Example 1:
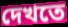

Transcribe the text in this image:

দেখতে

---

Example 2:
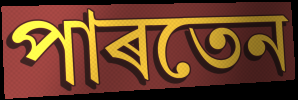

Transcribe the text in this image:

পাৰতেন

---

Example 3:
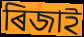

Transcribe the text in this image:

ৰিজাই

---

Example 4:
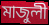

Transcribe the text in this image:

মাজুলী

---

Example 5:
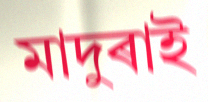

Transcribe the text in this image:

মাদুৰাই